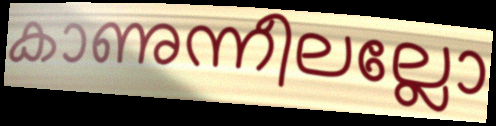
കാണുന്നീലല്ലോ